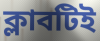
ক্লাবটিই